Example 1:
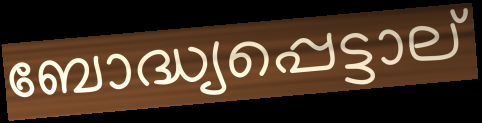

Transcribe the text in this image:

ബോദ്ധ്യപ്പെട്ടാല്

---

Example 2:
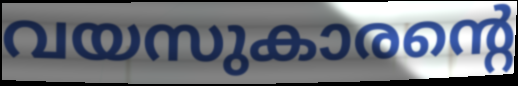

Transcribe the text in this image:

വയസുകാരന്റെ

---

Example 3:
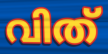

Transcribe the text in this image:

വിത്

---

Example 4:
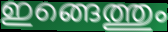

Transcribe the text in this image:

ഇങ്ങെത്തും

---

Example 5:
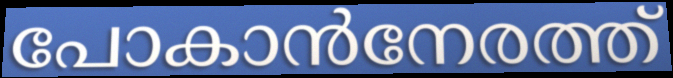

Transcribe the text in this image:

പോകാൻനേരത്ത്